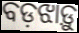
ବଡ଼ଝାଡ଼ୁ